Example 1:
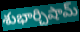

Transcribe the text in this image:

శుభార్చిషామ్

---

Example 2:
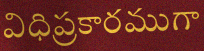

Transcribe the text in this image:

విధిప్రకారముగా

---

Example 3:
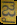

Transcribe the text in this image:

జై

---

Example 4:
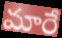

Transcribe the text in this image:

మారే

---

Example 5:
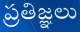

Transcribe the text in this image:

ప్రతిజ్ఞలు